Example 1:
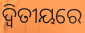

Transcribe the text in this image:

ଦ୍ଵିତୀୟରେ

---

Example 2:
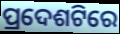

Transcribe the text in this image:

ପ୍ରଦେଶଟିରେ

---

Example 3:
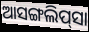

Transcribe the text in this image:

ଆସଙ୍ଗଲିପ୍‌ସା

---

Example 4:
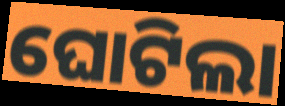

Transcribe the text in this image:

ଘୋଟିଲା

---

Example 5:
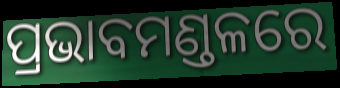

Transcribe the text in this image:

ପ୍ରଭାବମଣ୍ଡଳରେ